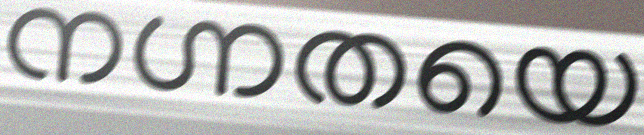
നഗ്നതയെ